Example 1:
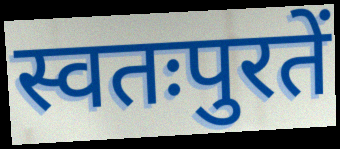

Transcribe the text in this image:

स्वतःपुरतें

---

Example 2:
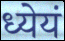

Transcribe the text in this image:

ध्येयं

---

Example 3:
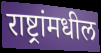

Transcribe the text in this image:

राष्ट्रांमधील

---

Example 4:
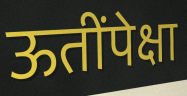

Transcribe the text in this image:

ऊतींपेक्षा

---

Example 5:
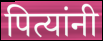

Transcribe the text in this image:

पित्यांनी